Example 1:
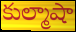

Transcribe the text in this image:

కుల్మాషా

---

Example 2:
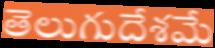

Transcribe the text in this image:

తెలుగుదేశమే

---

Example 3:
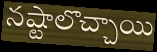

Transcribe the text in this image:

నష్టాలొచ్చాయి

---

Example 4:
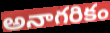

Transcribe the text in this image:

అనాగరికం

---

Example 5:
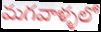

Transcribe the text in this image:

మగవాళ్ళలో